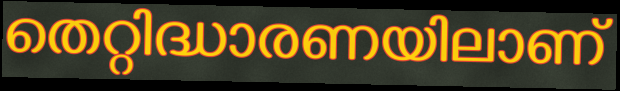
തെറ്റിദ്ധാരണയിലാണ്